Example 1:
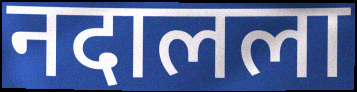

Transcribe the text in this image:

नदालला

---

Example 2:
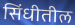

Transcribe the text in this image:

सिंधीतील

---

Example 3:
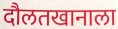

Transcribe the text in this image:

दौलतखानाला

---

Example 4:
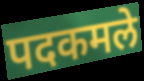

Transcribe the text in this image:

पदकमले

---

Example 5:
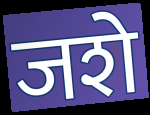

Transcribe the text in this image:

जशे